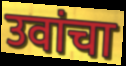
उवांचा